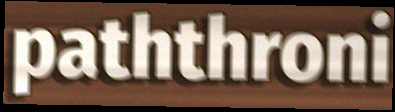
paththroni